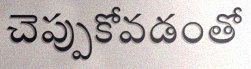
చెప్పుకోవడంతో